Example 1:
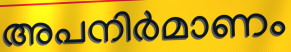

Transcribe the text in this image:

അപനിർമാണം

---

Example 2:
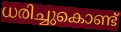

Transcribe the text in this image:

ധരിച്ചുകൊണ്ട്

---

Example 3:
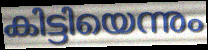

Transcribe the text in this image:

കിട്ടിയെന്നും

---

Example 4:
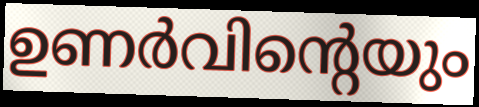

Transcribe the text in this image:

ഉണർവിന്റെയും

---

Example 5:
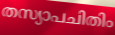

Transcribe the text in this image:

തസ്യാപചിതിം